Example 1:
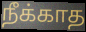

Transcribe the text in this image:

நீக்காத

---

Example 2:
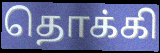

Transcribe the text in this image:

தொக்கி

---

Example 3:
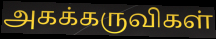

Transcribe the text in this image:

அகக்கருவிகள்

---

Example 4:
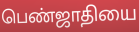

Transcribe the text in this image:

பெண்ஜாதியை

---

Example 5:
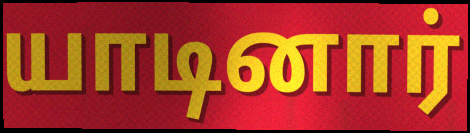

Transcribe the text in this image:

யாடினார்